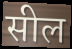
सील